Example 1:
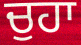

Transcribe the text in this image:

ਚੁਹਾ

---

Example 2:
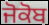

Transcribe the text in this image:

ਜੋਕੋਬ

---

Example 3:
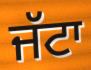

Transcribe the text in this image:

ਜੱਟਾ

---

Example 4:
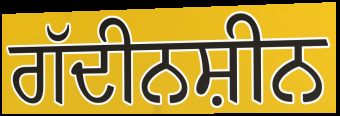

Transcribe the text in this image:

ਗੱਦੀਨਸ਼ੀਨ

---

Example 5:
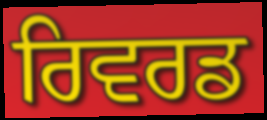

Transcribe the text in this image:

ਰਿਵਰਡ